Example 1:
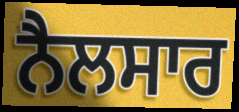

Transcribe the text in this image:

ਨੈਲਸਾਰ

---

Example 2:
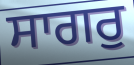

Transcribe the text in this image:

ਸਾਗਰੁ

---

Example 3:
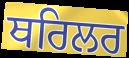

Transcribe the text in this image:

ਥਰਿਲਰ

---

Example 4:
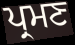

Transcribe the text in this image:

ਪ੍ਰਮਣ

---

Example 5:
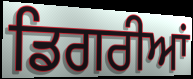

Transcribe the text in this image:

ਡਿਗਰੀਆਂ